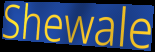
Shewale